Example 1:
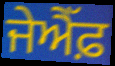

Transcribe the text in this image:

ਜੇਐੱਫ਼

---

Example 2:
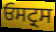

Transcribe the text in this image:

ਓਸਟ੍ਰਸ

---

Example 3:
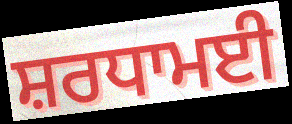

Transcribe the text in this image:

ਸ਼ਰਧਾਮਈ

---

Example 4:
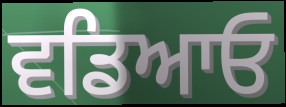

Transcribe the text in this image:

ਵਡਿਆਓ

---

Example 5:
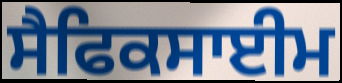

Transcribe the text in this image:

ਸੈਫਿਕਸਾਈਮ